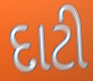
દાટી